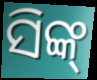
ସିଙ୍କ୍